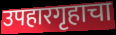
उपहारगृहाचा